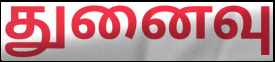
துனைவு